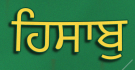
ਹਿਸਾਬੁ